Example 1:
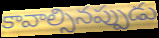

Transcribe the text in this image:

కావాల్సినప్పుడు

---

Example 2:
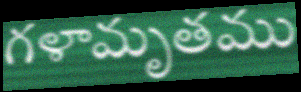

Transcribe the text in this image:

గళామృతము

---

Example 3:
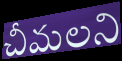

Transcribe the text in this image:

చీమలని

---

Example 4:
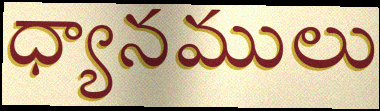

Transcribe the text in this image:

ధ్యానములు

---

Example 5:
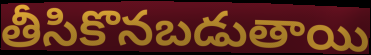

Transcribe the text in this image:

తీసికొనబడుతాయి